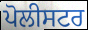
ਪੋਲੀਸਟਰ